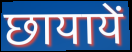
छायायें